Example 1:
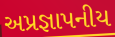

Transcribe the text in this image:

અપ્રજ્ઞાપનીય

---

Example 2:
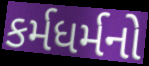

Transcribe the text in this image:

કર્મધર્મનો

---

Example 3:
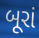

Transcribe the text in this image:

બૂરાં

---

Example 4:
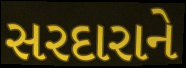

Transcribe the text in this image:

સરદારાને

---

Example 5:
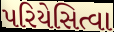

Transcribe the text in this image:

પરિયેસિત્વા